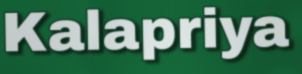
Kalapriya